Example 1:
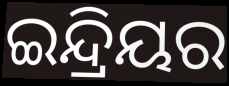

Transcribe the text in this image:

ଇନ୍ଦ୍ରିୟର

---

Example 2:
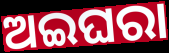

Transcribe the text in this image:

ଅଇଘରା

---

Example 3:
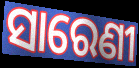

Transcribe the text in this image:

ସାରେଣୀ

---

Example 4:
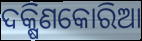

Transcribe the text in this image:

ଦକ୍ଷିଣକୋରିଆ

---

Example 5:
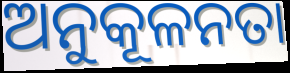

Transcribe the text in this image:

ଅନୁକୂଳନତା